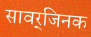
सावर्जिनक